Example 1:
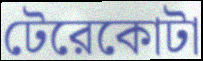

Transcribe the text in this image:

টেরেকোটা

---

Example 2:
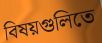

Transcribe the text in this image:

বিষয়গুলিতে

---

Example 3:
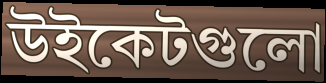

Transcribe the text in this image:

উইকেটগুলো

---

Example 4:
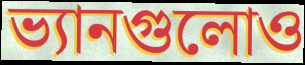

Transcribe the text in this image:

ভ্যানগুলোও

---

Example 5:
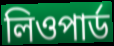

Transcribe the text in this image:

লিওপার্ড